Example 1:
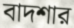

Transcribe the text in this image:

বাদশার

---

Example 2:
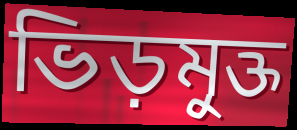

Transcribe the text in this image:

ভিড়মুক্ত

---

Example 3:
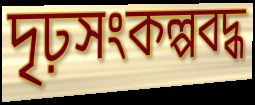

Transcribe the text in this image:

দৃঢ়সংকল্পবদ্ধ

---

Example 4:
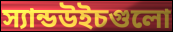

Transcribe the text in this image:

স্যান্ডউইচগুলো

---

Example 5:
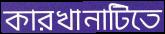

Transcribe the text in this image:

কারখানাটিতে